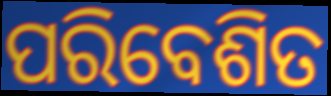
ପରିବେଶିତ